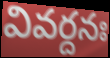
వివర్దనః